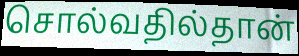
சொல்வதில்தான்